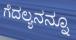
ಗೆದಲ್ಯನನ್ನೂ